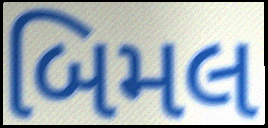
બિમલ